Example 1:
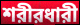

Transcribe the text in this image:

শরীরধারী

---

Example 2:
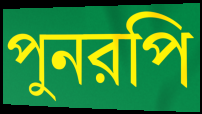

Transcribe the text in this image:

পুনরপি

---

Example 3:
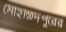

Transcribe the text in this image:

মোহাম্মদপুরের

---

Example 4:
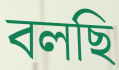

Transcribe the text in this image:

বলছি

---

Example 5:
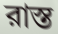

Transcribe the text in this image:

রাস্ত